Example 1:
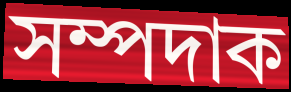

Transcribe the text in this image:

সম্পদাক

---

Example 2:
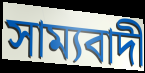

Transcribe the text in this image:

সাম্যবাদী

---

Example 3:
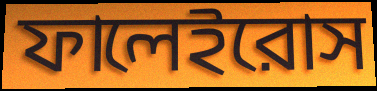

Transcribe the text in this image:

ফালেইরোস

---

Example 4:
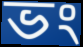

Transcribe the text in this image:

ভং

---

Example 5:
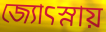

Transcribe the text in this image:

জ্যোৎস্নায়